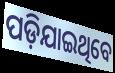
ପଡ଼ିଯାଇଥିବେ